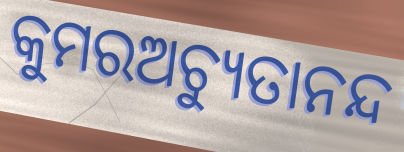
କୁମରଅଚ୍ୟୁତାନନ୍ଦ